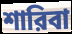
শারিবা